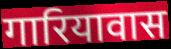
गारियावास